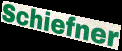
Schiefner